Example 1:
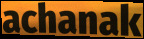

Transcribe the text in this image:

achanak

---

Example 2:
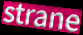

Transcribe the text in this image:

strane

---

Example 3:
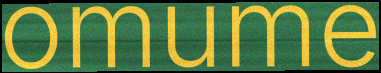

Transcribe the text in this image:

omume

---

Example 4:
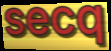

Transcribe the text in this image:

secq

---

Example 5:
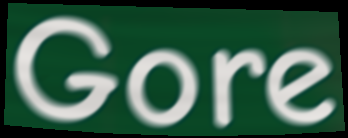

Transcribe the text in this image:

Gore